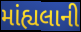
માંહ્યલાની